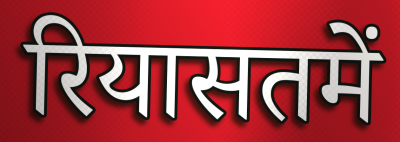
रियासतमें